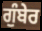
ਗੁੰਬੇਰ